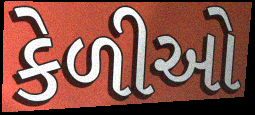
કેળીઓ